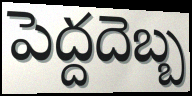
పెద్దదెబ్బ